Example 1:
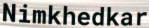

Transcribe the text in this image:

Nimkhedkar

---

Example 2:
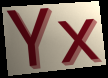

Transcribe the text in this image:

Yx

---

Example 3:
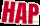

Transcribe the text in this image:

HAP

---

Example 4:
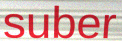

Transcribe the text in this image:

suber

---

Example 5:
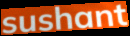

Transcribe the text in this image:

sushant